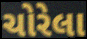
ચોરેલા